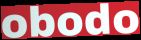
obodo